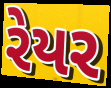
રેયર